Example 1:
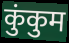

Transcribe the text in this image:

कुंकुम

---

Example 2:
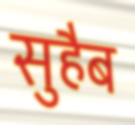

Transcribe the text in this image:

सुहैब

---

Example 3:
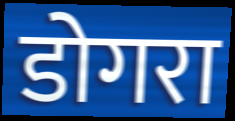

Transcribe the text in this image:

डोगरा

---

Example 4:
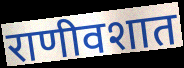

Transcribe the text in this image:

राणीवशात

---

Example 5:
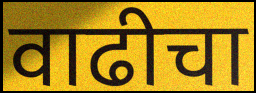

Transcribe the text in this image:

वाढीचा